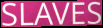
SLAVES